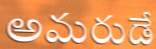
అమరుడే